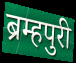
ब्रम्हपुरी